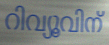
റിവ്യൂവിന്